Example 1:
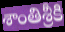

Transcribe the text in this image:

శాంతిశ్రీకి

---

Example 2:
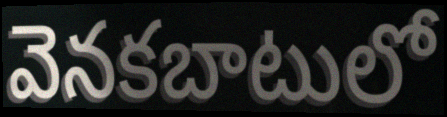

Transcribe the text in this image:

వెనకబాటులో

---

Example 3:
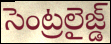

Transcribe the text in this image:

సెంట్రలైజ్డ్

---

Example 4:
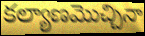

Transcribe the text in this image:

కల్యాణమొచ్చినా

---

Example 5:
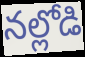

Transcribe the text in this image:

నల్లోడి